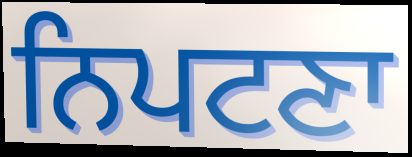
ਨਿਪਟਣਾ